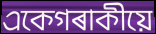
একেগৰাকীয়ে